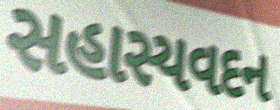
સહાસ્યવદન